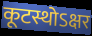
कूटस्थोऽक्षर